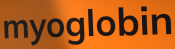
myoglobin